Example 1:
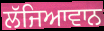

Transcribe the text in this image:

ਲੱਜਿਆਵਾਨ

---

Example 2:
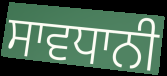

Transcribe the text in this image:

ਸਾਵਧਾਨੀ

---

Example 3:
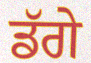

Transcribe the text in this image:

ਡੱਗੇ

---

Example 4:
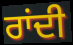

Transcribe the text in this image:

ਰਾਂਦੀ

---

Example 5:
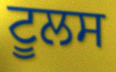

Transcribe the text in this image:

ਟੂਲਸ